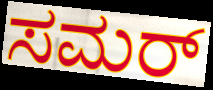
ಸಮರ್